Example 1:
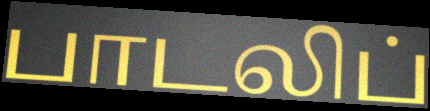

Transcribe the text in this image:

பாடலிப்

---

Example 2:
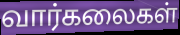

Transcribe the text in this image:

வார்கலைகள்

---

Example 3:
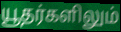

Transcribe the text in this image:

யூதர்களிலும்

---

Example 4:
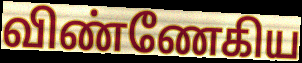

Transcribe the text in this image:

விண்ணேகிய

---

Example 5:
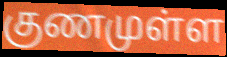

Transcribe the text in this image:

குணமுள்ள